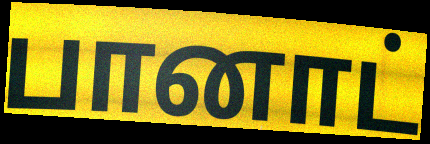
பானாட்